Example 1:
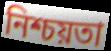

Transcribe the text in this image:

নিশ্চয়তা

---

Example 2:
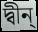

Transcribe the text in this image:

দ্বীন্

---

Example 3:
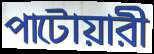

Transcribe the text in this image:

পাটোয়ারী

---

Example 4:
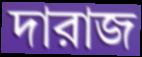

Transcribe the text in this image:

দারাজ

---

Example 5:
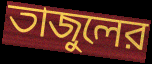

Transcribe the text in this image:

তাজুলের